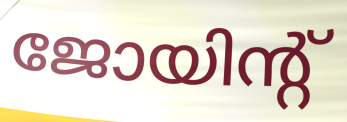
ജോയിന്റ്